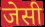
जेसी